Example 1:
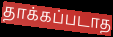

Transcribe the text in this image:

தாக்கப்படாத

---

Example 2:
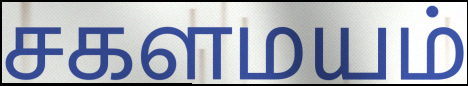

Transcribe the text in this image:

சகளமயம்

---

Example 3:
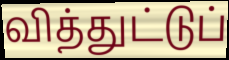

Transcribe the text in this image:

வித்துட்டுப்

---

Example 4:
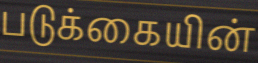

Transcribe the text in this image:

படுக்கையின்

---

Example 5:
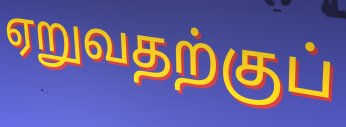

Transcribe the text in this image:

ஏறுவதற்குப்